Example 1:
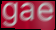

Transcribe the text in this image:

gae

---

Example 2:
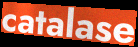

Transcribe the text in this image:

catalase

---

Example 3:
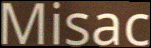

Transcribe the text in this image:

Misac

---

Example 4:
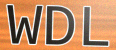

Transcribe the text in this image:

WDL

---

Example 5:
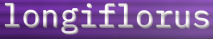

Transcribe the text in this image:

longiflorus